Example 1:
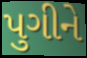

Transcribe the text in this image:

પુગીને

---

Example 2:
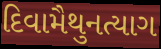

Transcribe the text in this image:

દિવામૈથુનત્યાગ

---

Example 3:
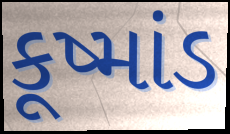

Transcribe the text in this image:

કૂષ્માંડ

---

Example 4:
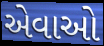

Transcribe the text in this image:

એવાઓ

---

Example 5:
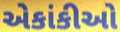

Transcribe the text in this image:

એકાંકીઓ